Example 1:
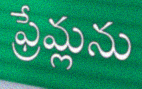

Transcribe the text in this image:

ఫ్రేమ్లను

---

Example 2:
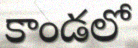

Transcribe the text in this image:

కాండలో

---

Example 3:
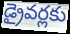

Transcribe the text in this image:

డ్రైవర్లకు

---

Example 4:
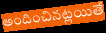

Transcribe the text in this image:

అందించినట్లయితే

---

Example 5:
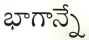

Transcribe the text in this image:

భాగాన్నే